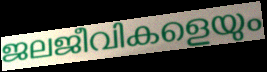
ജലജീവികളെയും